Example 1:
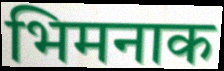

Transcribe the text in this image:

भिमनाक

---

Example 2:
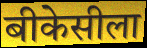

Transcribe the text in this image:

बीकेसीला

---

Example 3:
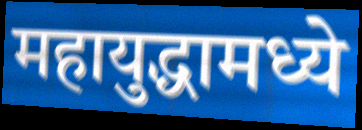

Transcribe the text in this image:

महायुद्धामध्ये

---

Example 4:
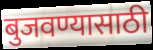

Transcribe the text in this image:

बुजवण्यासाठी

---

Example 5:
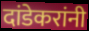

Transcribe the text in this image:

दांडेकरांनी